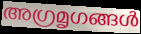
അഗ്രമൃഗങ്ങൾ